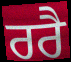
ਰਰੈ